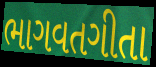
ભાગવતગીતા